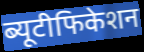
ब्यूटीफिकेशन